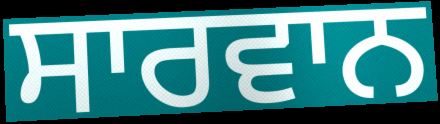
ਸਾਰਵਾਨ